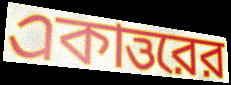
একাত্তরের